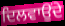
ਦਿਲਵਾਉਂਦੇ